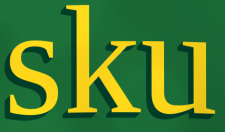
sku